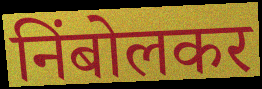
निंबोलकर